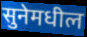
सुनेमधील